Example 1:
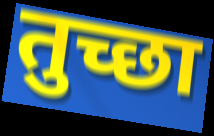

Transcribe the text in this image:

तुच्छा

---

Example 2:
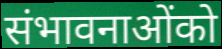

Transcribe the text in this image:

संभावनाओंको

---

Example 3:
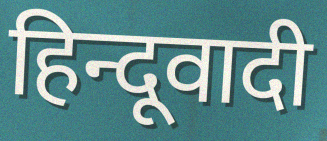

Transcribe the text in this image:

हिन्दूवादी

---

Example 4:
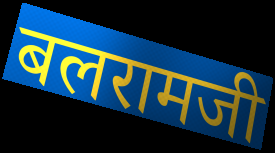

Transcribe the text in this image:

बलरामजी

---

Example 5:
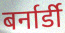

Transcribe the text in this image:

बर्नार्डी